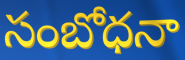
సంబోధనా